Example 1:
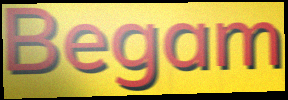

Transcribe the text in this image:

Begam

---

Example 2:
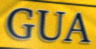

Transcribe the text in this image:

GUA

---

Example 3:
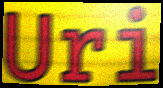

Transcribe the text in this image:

Uri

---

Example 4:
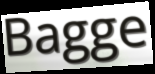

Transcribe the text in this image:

Bagge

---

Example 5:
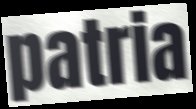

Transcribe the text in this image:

patria